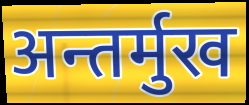
अन्तर्मुख